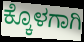
ಕ್ಕೊಳಗಾಗಿ